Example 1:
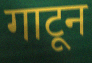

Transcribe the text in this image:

गाटून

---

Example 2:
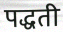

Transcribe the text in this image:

पद्धती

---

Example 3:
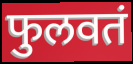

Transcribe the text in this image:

फुलवतं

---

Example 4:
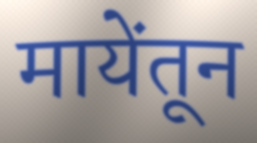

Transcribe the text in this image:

मायेंतून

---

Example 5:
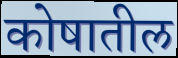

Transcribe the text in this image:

कोषातील